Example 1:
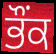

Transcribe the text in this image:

ਭੌਂਕ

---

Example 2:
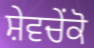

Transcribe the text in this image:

ਸ਼ੇਵਚੇਂਕੋ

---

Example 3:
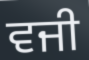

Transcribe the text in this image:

ਵਜੀ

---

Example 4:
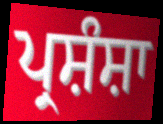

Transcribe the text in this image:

ਪ੍ਰਸ਼ੰਸ਼ਾ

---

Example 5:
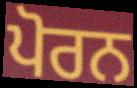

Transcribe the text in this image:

ਪੋਰਨ